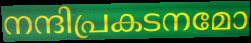
നന്ദിപ്രകടനമോ